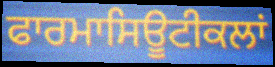
ਫਾਰਮਾਸਿਊਟੀਕਲਾਂ